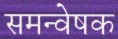
समन्वेषक